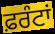
ਫ਼ਰੰਟਾਂ